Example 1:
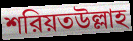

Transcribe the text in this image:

শরিয়তউল্লাহ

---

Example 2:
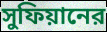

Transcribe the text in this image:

সুফিয়ানের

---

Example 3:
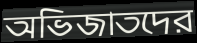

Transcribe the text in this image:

অভিজাতদের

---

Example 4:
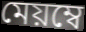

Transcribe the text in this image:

মেয়ম্বে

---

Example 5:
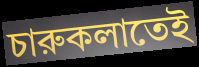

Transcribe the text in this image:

চারুকলাতেই